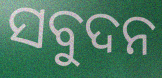
ସବୁଦନ